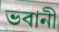
ভবানী